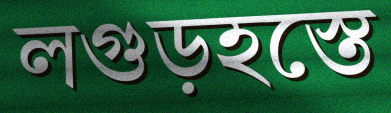
লগুড়হস্তে